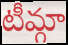
టీమ్గా